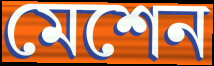
মেশেন